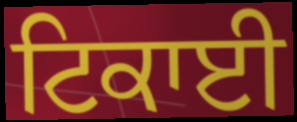
ਟਿਕਾਈ